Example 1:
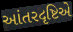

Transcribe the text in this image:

આંતરદૃષ્ટિએ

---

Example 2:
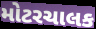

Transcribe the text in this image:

મોટરચાલક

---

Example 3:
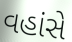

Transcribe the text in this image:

વહાંસે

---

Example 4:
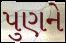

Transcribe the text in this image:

પુણને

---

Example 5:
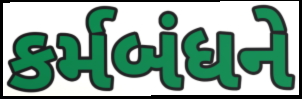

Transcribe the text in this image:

કર્મબંધને